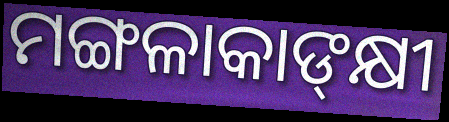
ମଙ୍ଗଳାକାଙ୍‍କ୍ଷୀ